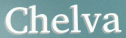
Chelva